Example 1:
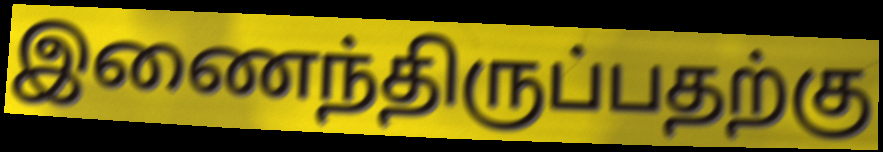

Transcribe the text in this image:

இணைந்திருப்பதற்கு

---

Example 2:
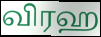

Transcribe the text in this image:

விரஹ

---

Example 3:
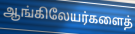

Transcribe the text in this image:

ஆங்கிலேயர்களைத்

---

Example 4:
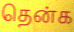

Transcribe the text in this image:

தென்க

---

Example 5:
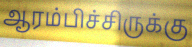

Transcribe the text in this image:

ஆரம்பிச்சிருக்கு